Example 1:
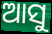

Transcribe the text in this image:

ଆସୁ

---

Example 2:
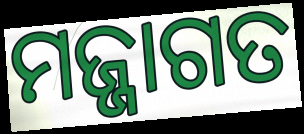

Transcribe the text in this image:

ମଜ୍ଜାଗତ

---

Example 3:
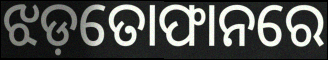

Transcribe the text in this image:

ଝଡ଼ତୋଫାନରେ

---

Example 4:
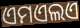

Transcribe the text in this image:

ଏମଏଲଏ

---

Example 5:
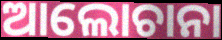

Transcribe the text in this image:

ଆଲୋଚାନା